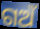
ଗଅଁ